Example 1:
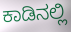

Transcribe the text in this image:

ಕಾಡಿನಲ್ಲಿ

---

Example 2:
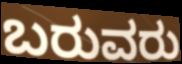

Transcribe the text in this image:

ಬರುವರು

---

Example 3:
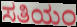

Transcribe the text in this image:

ಸತಿಯಂ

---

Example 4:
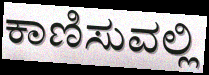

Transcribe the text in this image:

ಕಾಣಿಸುವಲ್ಲಿ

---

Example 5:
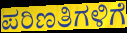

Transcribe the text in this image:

ಪರಿಣತಿಗಳಿಗೆ